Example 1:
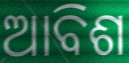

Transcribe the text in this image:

ଆବିଶ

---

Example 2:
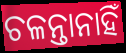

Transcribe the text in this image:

ଚଳନ୍ତାନାହିଁ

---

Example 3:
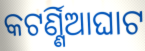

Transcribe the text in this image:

କଟର୍ଣ୍ଣିଆଘାଟ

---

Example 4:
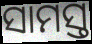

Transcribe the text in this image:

ସାମସ୍ତ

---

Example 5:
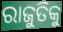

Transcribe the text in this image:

ରାଜୁତିକୁ